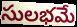
సులభమే